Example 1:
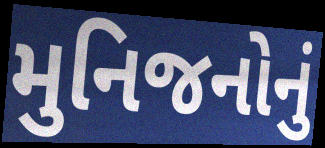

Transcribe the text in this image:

મુનિજનોનું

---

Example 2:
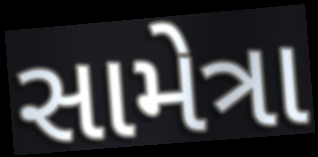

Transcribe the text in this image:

સામેત્રા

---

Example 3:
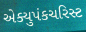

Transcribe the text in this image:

એક્યુપંકચરિસ્ટ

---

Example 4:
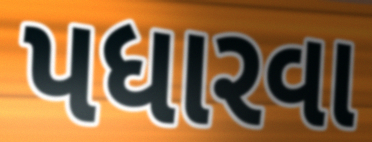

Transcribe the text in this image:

પધારવા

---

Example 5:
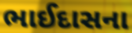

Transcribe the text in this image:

ભાઈદાસના